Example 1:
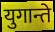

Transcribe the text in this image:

युगान्ते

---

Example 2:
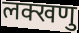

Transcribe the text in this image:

लक्खणु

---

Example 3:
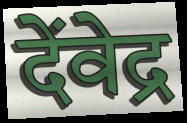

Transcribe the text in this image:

देंवेद्र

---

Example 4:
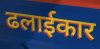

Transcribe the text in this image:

ढलाईकार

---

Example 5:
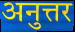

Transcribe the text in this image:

अनुत्तर